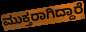
ಮುಕ್ತರಾಗಿದ್ದಾರೆ